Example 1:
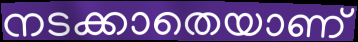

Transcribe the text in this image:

നടക്കാതെയാണ്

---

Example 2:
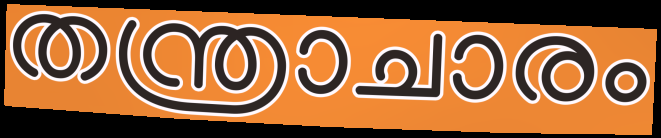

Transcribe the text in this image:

തന്ത്രാചാരം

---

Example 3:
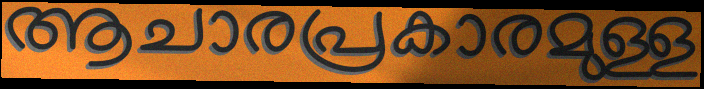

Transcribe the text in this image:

ആചാരപ്രകാരമുള്ള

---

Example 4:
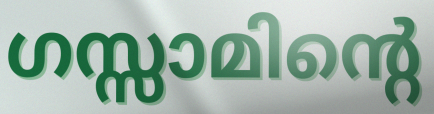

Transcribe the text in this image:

ഗസ്സാമിന്റെ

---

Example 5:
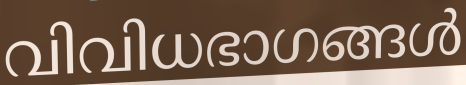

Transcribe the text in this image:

വിവിധഭാഗങ്ങൾ